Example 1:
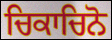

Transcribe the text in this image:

ਚਿਕਾਚਿਨੋ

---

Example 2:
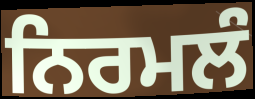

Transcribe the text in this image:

ਨਿਰਮਲੰ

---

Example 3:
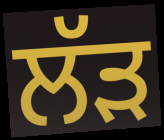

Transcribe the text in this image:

ਲੱੜ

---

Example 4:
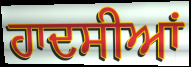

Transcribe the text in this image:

ਹਾਦਸੀਆਂ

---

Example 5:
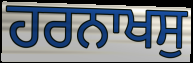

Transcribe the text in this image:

ਹਰਨਾਖਸੁ